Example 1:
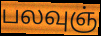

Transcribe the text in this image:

பலவுஞ்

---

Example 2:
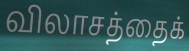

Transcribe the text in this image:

விலாசத்தைக்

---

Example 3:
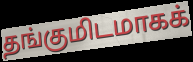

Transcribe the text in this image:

தங்குமிடமாகக்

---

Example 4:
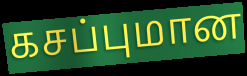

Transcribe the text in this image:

கசப்புமான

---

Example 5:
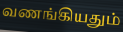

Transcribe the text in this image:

வணங்கியதும்